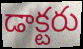
డాక్టరు